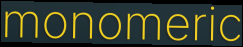
monomeric